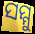
ସମ୍ମୁ